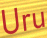
Uru